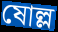
ষোল্ল